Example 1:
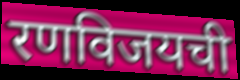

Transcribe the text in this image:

रणविजयची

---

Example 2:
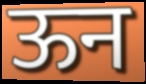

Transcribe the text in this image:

ऊन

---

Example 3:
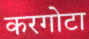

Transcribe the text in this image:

करगोटा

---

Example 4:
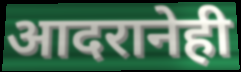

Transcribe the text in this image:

आदरानेही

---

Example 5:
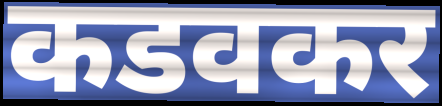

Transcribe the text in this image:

कडवकर